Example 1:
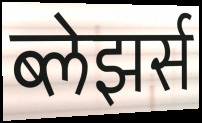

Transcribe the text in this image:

ब्लेझर्स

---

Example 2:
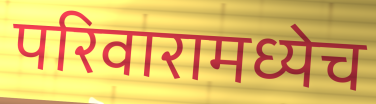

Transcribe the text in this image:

परिवारामध्येच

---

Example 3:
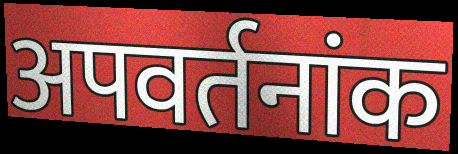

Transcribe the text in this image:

अपवर्तनांक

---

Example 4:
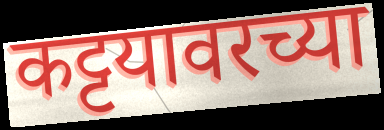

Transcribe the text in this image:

कट्टयावरच्या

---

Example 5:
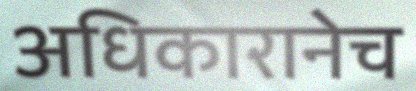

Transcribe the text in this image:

अधिकारानेच